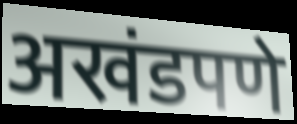
अखंडपणे